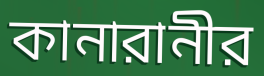
কানারানীর